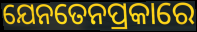
ଯେନତେନପ୍ରକାରେ